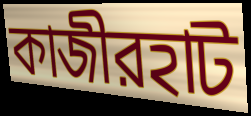
কাজীরহাট